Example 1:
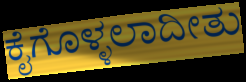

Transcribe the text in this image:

ಕೈಗೊಳ್ಳಲಾದೀತು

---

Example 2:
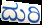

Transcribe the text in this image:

ದುರಿ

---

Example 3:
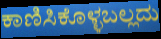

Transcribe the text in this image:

ಕಾಣಿಸಿಕೊಳ್ಳಬಲ್ಲದು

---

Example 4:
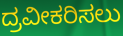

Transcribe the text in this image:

ದ್ರವೀಕರಿಸಲು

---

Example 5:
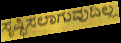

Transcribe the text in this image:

ಸೃಷ್ಟಿಸಲಾಗುವುದಿಲ್ಲ